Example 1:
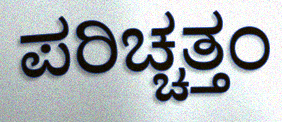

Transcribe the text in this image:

ಪರಿಚ್ಚತ್ತಂ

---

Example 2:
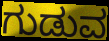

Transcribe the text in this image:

ಗುಡುವ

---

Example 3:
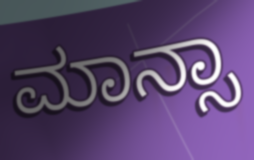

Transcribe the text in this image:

ಮಾನ್ಸಾ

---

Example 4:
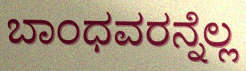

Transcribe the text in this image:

ಬಾಂಧವರನ್ನೆಲ್ಲ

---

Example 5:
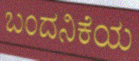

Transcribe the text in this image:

ಬಂದನಿಕೆಯ